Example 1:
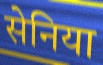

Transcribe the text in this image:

सेनिया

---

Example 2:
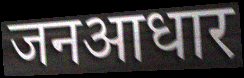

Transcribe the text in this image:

जनआधार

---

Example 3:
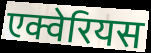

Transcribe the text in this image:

एक्वेरियस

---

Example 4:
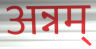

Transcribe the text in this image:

अन्नम्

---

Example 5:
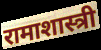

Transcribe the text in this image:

रामाशास्त्री